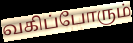
வகிப்போரும்